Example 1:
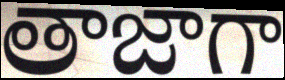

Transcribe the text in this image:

తాజాగా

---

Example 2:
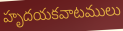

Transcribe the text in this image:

హృదయకవాటములు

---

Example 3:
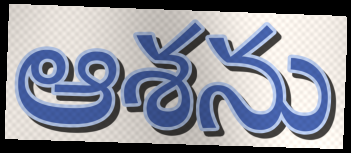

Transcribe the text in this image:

ఆశను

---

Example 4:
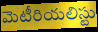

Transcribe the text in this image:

మెటీరియలిస్టు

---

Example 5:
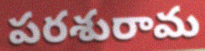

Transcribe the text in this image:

పరశురామ